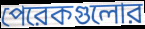
পেরেকগুলোর